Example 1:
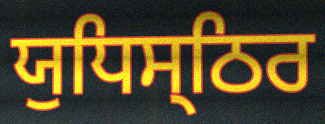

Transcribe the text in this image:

ਯੁਧਿਸ੍ਠਿਰ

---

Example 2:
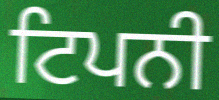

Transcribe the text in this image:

ਟਿਪਨੀ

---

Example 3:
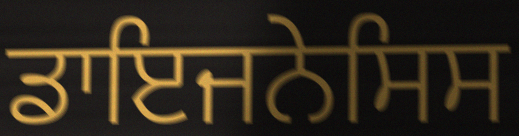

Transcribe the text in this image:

ਡਾਇਜਨੇਸਿਸ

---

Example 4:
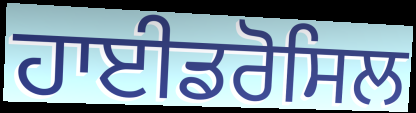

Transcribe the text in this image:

ਹਾਈਡਰੋਸਿਲ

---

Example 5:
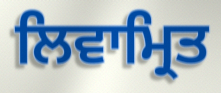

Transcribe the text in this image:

ਲਿਵਾਮ੍ਰਿਤ